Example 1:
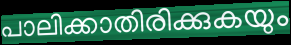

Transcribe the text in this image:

പാലിക്കാതിരിക്കുകയും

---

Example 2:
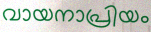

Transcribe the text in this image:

വായനാപ്രിയം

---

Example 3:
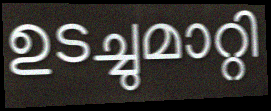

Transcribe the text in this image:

ഉടച്ചുമാറ്റി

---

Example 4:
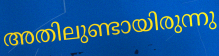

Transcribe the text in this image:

അതിലുണ്ടായിരുന്നു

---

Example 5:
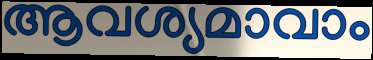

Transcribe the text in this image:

ആവശ്യമാവാം